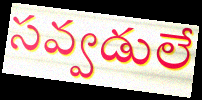
సవ్వడులే